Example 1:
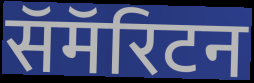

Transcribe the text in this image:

सॅमॅरिटन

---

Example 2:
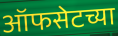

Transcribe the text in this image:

ऑफसेटच्या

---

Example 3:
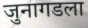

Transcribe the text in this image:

जुनागडला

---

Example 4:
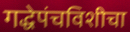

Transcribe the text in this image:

गद्धेपंचविशीचा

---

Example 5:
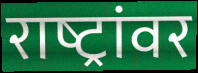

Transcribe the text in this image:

राष्ट्रांवर